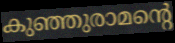
കുഞ്ഞുരാമന്റെ